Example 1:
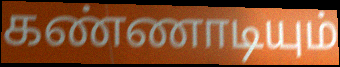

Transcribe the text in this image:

கண்ணாடியும்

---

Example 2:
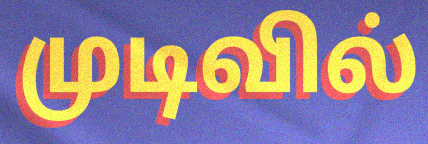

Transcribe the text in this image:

முடிவில்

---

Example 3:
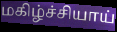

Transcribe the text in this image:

மகிழ்ச்சியாய்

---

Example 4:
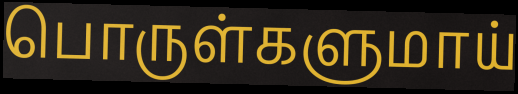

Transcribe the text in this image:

பொருள்களுமாய்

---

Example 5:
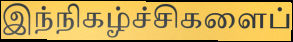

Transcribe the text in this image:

இந்நிகழ்ச்சிகளைப்